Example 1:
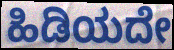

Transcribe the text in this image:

ಹಿಡಿಯದೇ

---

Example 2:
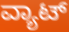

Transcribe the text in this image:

ವ್ಯಾಟ್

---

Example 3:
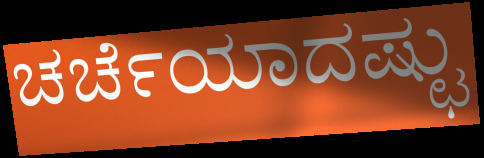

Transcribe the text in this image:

ಚರ್ಚೆಯಾದಷ್ಟು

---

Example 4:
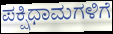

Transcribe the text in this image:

ಪಕ್ಷಿಧಾಮಗಳಿಗೆ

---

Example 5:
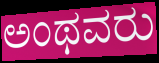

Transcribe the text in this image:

ಅಂಥವರು